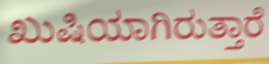
ಖುಷಿಯಾಗಿರುತ್ತಾರೆ